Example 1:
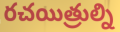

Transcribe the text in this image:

రచయిత్రుల్ని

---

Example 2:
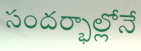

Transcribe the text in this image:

సందర్భాల్లోనే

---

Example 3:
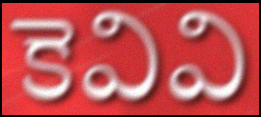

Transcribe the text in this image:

కెవివి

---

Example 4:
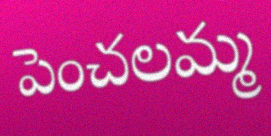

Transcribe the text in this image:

పెంచలమ్మ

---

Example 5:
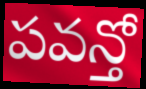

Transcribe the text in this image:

పవన్తో